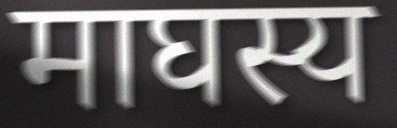
माघस्य